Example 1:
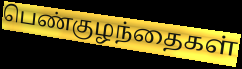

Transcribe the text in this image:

பெண்குழந்தைகள்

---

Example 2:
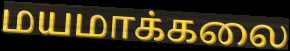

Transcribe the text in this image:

மயமாக்கலை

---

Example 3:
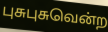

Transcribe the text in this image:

புசுபுசுவென்ற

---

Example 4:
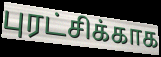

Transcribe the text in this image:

புரட்சிக்காக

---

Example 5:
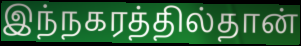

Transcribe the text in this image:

இந்நகரத்தில்தான்